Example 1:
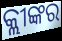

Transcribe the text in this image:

କ୍ଲୀଙ୍କର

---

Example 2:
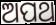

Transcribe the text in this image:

ଅପଥ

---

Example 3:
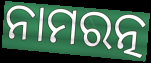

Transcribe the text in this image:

ନାମରତ୍ନ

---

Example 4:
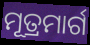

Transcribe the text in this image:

ମୂତ୍ରମାର୍ଗ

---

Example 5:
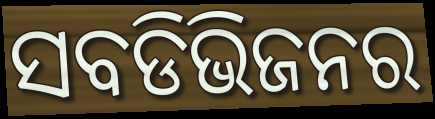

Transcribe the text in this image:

ସବଡିଭିଜନର